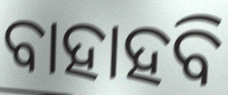
ବାହାହବି